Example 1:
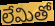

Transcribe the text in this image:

లేమితో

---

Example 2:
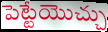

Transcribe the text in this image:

పెట్టేయొచ్చు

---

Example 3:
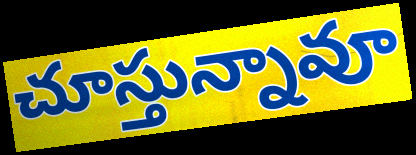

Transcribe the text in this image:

చూస్తున్నావూ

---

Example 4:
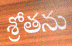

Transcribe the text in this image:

శ్రోతను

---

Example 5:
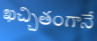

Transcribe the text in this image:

ఖచ్చితంగానే